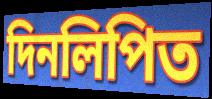
দিনলিপিত